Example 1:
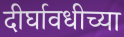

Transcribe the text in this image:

दीर्घावधीच्या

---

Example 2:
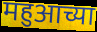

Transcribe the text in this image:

महुआच्या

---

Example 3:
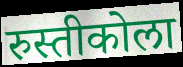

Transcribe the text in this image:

रुस्तीकोला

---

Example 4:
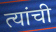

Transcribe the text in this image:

त्‍यांची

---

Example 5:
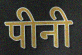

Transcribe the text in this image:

पीनी